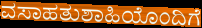
ವಸಾಹತುಶಾಹಿಯೊಂದಿಗೆ